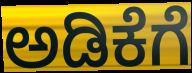
ಅಡಿಕೆಗೆ